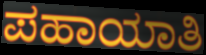
ಪಹಾಯಾತಿ